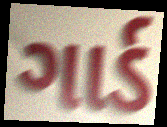
ગાર્ડ